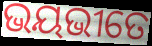
ଭୟଭୀତେ